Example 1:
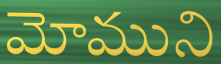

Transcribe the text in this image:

మోముని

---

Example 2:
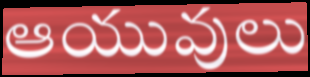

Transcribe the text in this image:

ఆయువులు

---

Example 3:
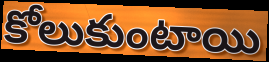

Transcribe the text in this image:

కోలుకుంటాయి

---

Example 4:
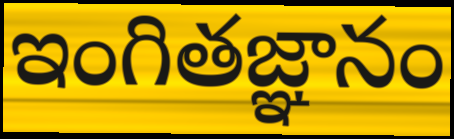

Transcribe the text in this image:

ఇంగితజ్ఞానం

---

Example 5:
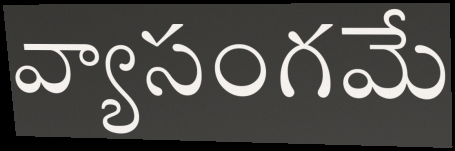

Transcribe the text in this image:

వ్యాసంగమే